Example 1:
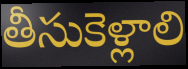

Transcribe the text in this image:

తీసుకెళ్లాలి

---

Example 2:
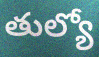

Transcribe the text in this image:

తుల్యో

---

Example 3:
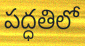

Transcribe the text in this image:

పద్ధతిలో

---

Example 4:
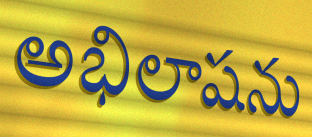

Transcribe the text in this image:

అభిలాషను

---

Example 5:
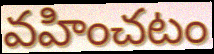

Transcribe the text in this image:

వహించటం